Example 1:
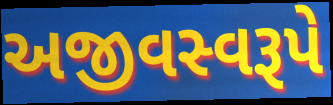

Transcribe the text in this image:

અજીવસ્વરૂપે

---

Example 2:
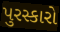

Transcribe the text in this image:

પુરસ્કારો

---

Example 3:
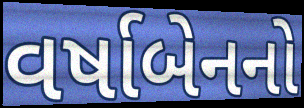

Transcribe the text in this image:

વર્ષાબેનનો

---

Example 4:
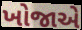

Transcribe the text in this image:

ખોજાએ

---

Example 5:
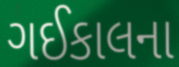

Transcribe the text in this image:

ગઈકાલના